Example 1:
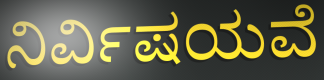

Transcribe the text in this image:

ನಿರ್ವಿಷಯವೆ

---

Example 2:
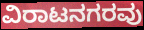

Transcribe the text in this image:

ವಿರಾಟನಗರವು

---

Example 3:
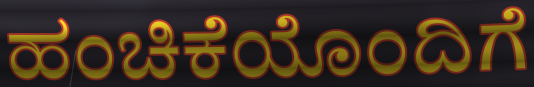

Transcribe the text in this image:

ಹಂಚಿಕೆಯೊಂದಿಗೆ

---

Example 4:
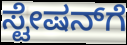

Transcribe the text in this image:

ಸ್ಟೇಷನ್‌ಗೆ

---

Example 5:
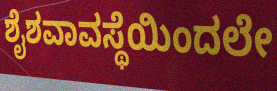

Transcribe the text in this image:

ಶೈಶವಾವಸ್ಥೆಯಿಂದಲೇ